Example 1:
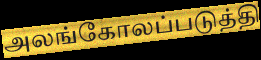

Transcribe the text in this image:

அலங்கோலப்படுத்தி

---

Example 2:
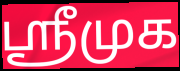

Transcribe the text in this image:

ஸ்ரீமுக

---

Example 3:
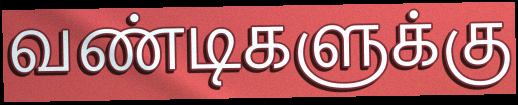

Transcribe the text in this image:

வண்டிகளுக்கு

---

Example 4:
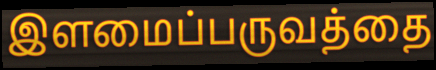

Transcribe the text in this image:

இளமைப்பருவத்தை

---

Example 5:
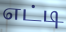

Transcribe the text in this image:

எட்டி